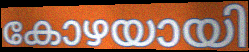
കോഴയായി